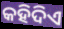
କହିଦିଏ